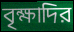
বৃক্ষাদির